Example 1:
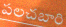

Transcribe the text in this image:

పలచబారి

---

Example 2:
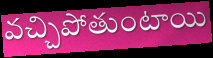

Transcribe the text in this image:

వచ్చిపోతుంటాయి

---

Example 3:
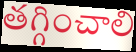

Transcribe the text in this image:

తగ్గించాలి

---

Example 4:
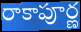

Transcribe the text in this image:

రాకాపూర్ణ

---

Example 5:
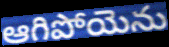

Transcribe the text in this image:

ఆగిపోయెను